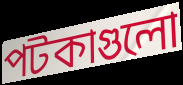
পটকাগুলো